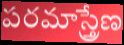
పరమాస్త్రేణ